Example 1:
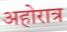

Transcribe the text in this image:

अहोरात्र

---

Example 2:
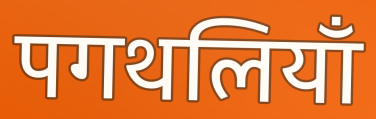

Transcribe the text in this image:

पगथलियाँ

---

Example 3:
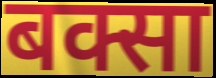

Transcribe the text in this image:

बक्सा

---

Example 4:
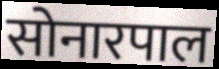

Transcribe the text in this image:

सोनारपाल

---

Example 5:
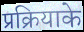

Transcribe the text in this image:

प्रक्रियाके